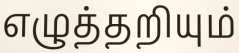
எழுத்தறியும்